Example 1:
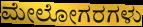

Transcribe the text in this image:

ಮೇಲೋಗರಗಳು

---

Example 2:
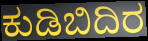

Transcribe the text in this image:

ಕುಡಿಬಿದಿರ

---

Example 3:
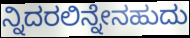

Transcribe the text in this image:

ನ್ನಿದರಲಿನ್ನೇನಹುದು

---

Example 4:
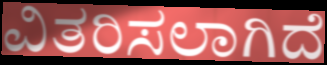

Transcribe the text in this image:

ವಿತರಿಸಲಾಗಿದೆ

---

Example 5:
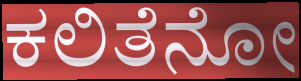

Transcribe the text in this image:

ಕಲಿತೆನೋ